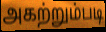
அகற்றும்படி